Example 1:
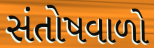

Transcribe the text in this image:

સંતોષવાળો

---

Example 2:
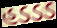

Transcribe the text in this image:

હડડડ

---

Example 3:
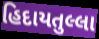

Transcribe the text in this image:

હિદાયતુલ્લા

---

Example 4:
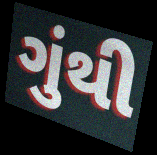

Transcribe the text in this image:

ગુંથી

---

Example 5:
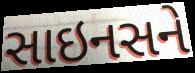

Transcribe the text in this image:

સાઇનસને